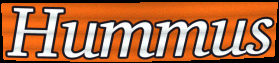
Hummus